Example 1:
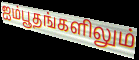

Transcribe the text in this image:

ஐம்பூதங்களிலும்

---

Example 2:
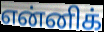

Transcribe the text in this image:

என்னிக்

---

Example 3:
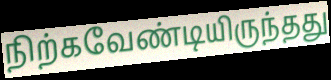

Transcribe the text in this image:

நிற்கவேண்டியிருந்தது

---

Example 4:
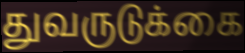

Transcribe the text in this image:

துவருடுக்கை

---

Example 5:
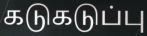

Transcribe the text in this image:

கடுகடுப்பு